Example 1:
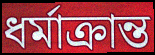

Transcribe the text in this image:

ধর্মাক্রান্ত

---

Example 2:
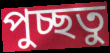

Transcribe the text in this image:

পুচ্ছতু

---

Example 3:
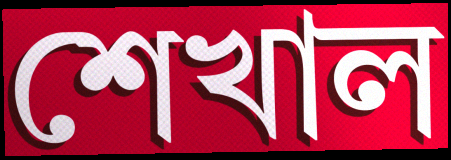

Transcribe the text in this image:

শেখাল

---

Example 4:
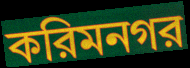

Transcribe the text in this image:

করিমনগর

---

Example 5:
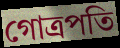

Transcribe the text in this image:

গোত্রপতি